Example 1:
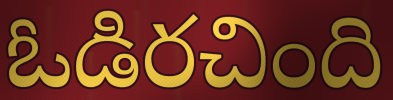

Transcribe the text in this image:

ఓడిరచింది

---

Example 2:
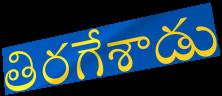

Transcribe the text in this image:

తిరగేశాడు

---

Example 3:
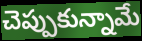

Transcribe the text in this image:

చెప్పుకున్నామే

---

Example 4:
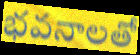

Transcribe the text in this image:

భవనాలతో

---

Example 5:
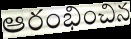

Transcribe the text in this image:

ఆరంభించిన